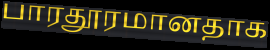
பாரதூரமானதாக